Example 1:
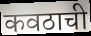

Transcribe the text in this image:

कवठाची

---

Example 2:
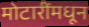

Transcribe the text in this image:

मोटारींमधून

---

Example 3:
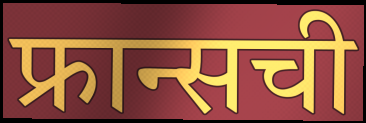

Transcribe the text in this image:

फ्रान्सची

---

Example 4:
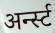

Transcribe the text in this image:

अर्न्स्ट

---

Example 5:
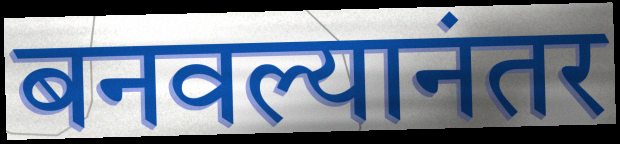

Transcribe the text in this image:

बनवल्यानंतर